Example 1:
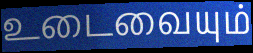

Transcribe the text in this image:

உடைவையும்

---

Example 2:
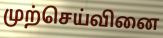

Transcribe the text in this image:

முற்செய்வினை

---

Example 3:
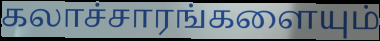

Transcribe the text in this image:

கலாச்சாரங்களையும்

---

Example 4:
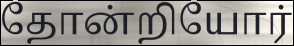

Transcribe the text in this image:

தோன்றியோர்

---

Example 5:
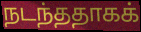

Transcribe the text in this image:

நடந்ததாகக்